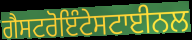
ਗੈਸਟਰੋਇੰਟੇਸਟਾਈਨਲ